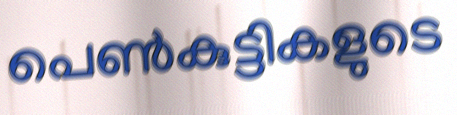
പെൺകുട്ടികളുടെ